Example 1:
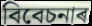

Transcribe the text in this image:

বিবেচনাৰ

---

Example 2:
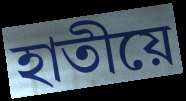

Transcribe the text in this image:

হাতীয়ে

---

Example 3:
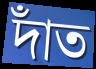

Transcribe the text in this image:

দাঁত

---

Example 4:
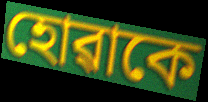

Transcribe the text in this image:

হোৱাকে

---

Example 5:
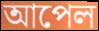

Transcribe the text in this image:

আপেল